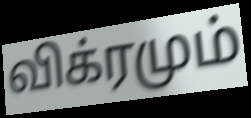
விக்ரமும்